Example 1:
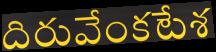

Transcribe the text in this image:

దిరువేంకటేశ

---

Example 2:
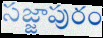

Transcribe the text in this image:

సజ్జాపురం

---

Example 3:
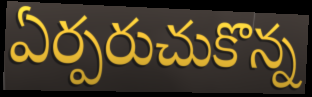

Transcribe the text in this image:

ఏర్పరుచుకొన్న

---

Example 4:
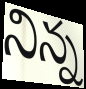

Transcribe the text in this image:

నిన్న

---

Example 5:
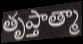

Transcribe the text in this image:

తృప్తాత్మా